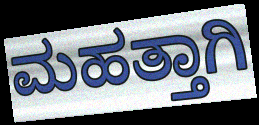
ಮಹತ್ತಾಗಿ